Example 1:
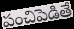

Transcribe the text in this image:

పంచిపెడితే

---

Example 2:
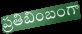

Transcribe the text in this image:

ప్రతిబింబంగా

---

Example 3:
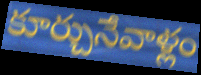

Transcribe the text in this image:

కూర్చునేవాళ్లం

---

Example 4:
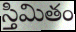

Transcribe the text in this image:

స్తిమితం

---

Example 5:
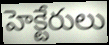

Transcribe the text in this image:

హెక్టేరులు